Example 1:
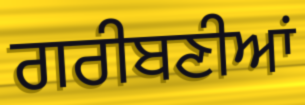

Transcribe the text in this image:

ਗਰੀਬਣੀਆਂ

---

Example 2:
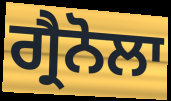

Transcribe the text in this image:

ਗ੍ਰੈਨੋਲਾ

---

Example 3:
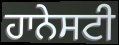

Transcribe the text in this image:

ਹਾਨੇਸਟੀ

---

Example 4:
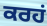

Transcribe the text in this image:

ਕਰਹਂ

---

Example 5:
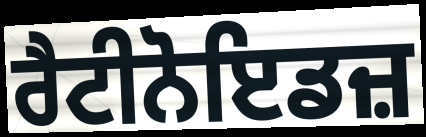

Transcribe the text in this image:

ਰੈਟੀਨੋਇਡਜ਼